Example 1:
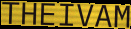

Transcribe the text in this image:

THEIVAM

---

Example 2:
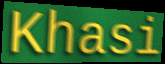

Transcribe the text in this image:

Khasi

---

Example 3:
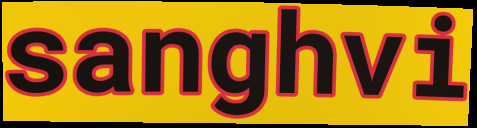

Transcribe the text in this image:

sanghvi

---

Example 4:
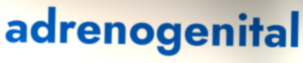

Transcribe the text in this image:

adrenogenital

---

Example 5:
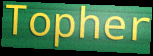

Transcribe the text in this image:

Topher